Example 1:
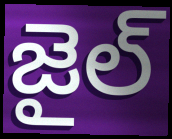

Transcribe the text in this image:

జైల్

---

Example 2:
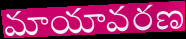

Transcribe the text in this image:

మాయావరణ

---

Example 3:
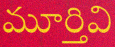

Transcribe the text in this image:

మూర్తివి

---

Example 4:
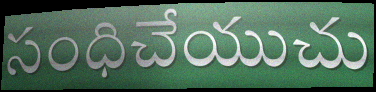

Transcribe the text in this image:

సంధిచేయుచు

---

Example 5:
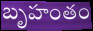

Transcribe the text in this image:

బృహంతం